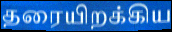
தரையிறக்கிய